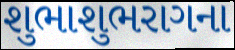
શુભાશુભરાગના